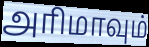
அரிமாவும்